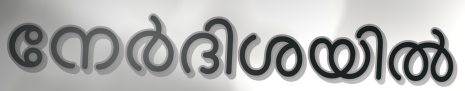
നേർദിശയിൽ